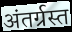
अंतर्ग्रस्त